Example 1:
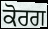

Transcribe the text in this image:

ਕੋਰਗ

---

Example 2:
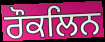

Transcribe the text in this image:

ਰੌਕਲਿਨ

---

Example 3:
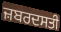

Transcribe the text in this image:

ਜ਼ਬਰਦਸਤੀ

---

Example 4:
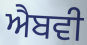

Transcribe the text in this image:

ਐਬਵੀ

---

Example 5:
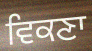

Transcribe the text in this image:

ਵਿਕਣਾ